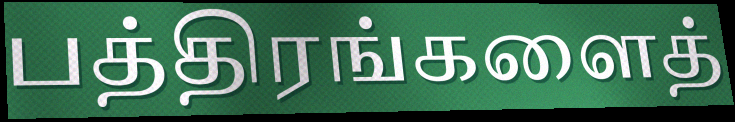
பத்திரங்களைத்